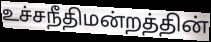
உச்சநீதிமன்றத்தின்